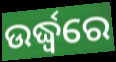
ଉର୍ଦ୍ଧ୍ଵରେ